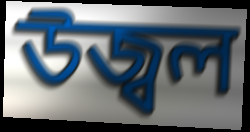
উজ্বল